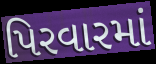
પિરવારમાં